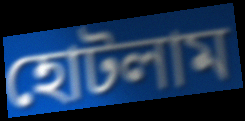
হোটলাম